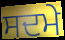
ਸਦਮੇ